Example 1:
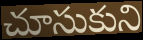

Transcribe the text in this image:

చూసుకుని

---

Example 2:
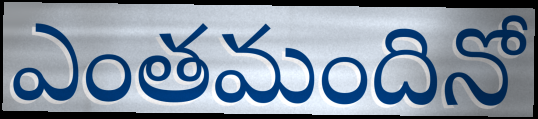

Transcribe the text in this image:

ఎంతమందినో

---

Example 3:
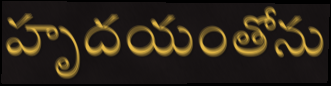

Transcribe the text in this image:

హృదయంతోను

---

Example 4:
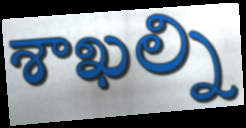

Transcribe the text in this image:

శాఖల్ని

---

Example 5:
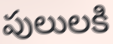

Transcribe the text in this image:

పులులకి